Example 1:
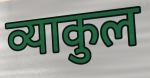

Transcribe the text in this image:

व्याकुल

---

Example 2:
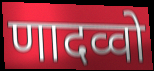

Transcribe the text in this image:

णादव्वो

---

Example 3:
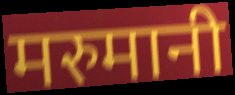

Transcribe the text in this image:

मरुमानी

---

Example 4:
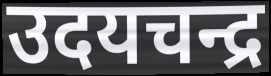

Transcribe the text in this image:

उदयचन्द्र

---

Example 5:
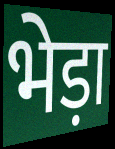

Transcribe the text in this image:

भेड़ा